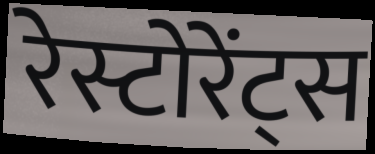
रेस्‍टोरेंट्स